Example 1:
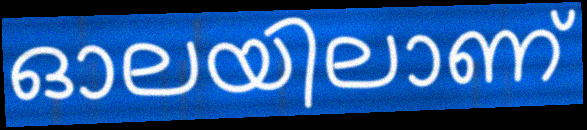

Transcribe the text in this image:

ഓലയിലാണ്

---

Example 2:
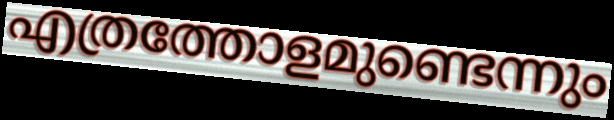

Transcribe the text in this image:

എത്രത്തോളമുണ്ടെന്നും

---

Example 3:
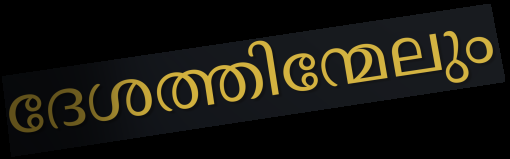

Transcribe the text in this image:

ദേശത്തിന്മേലും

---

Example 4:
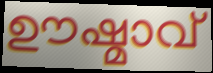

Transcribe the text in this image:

ഊഷ്മാവ്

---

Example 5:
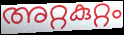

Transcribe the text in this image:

അറ്റകുറ്റം